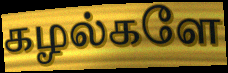
கழல்களே